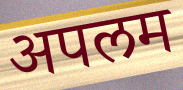
अपलम